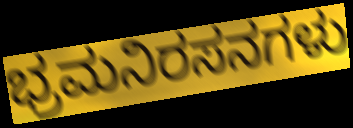
ಭ್ರಮನಿರಸನಗಳು